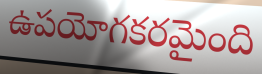
ఉపయోగకరమైంది